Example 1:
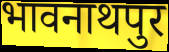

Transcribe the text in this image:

भावनाथपुर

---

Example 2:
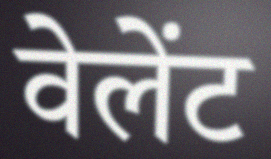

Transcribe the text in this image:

वेलेंट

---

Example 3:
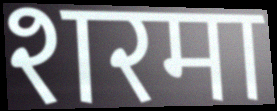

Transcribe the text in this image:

शरमा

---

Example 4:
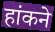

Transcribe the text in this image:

हांकने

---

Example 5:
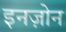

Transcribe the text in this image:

इनज़ोन